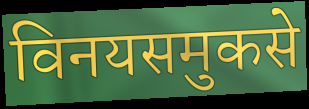
विनयसमुकसे